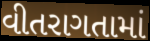
વીતરાગતામાં